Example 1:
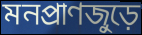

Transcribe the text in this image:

মনপ্রাণজুড়ে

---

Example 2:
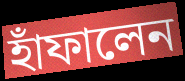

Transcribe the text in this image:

হাঁফালেন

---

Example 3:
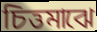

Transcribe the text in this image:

চিত্তমাঝে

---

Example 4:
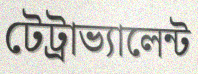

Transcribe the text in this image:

টেট্রাভ্যালেন্ট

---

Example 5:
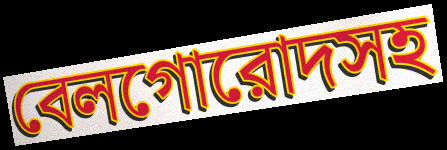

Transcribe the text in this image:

বেলগোরোদসহ